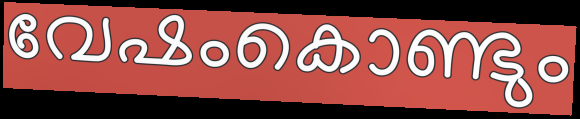
വേഷംകൊണ്ടും